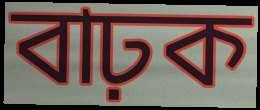
বাঢ়ক